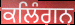
ਕਲਿੰਗਨ